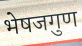
भेषजगुण